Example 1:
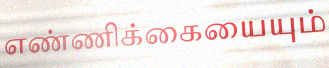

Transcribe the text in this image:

எண்ணிக்கையையும்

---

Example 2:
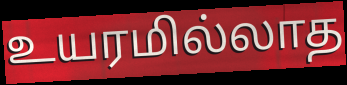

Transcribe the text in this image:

உயரமில்லாத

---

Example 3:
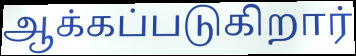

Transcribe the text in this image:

ஆக்கப்படுகிறார்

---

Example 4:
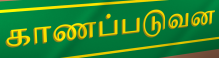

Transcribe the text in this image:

காணப்படுவன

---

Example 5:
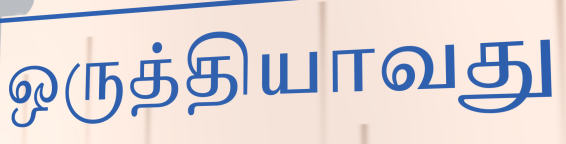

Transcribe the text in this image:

ஒருத்தியாவது